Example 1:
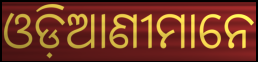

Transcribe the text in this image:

ଓଡ଼ିଆଣୀମାନେ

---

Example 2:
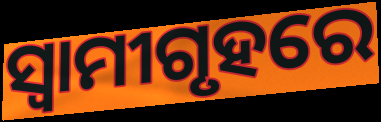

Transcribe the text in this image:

ସ୍ଵାମୀଗୃହରେ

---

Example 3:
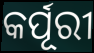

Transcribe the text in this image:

କର୍ପୂରୀ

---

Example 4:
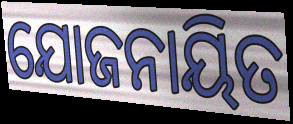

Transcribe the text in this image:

ଯୋଜନାୟିତ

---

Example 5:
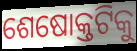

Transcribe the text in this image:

ଶେଷୋକ୍ତଟିକୁ